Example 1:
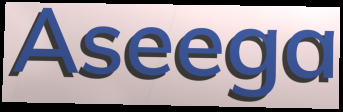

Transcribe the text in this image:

Aseega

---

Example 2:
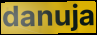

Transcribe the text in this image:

danuja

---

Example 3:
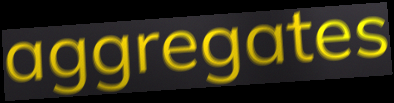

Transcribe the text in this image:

aggregates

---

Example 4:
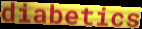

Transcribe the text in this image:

diabetics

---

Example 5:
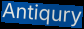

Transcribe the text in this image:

Antiqury